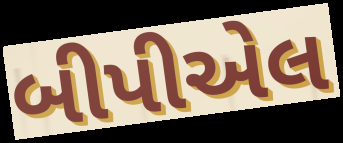
બીપીએલ